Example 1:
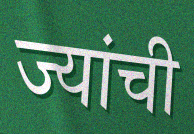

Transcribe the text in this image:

ज्यांची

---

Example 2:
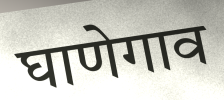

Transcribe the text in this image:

घाणेगाव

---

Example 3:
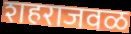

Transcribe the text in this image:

शहराजवळ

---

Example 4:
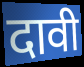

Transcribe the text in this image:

दावी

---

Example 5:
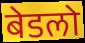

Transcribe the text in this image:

बेडलो